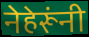
नेहेरूंनी